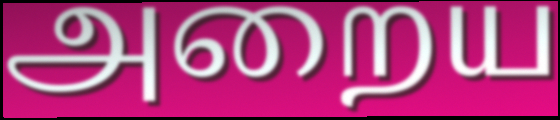
அறைய